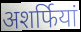
अशर्फियां